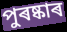
পুৰষ্কাৰ